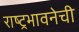
राष्ट्रभावनेची